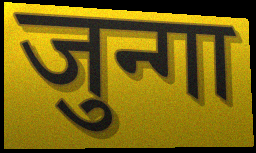
जुन्गा